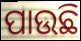
ପାଉଛି